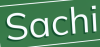
Sachi